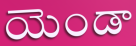
యెండా